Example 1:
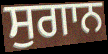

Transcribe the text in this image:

ਸੁਗਾਨ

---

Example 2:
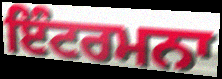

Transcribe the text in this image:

ਇੰਟਰਮਨਾ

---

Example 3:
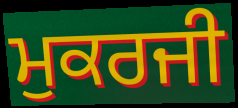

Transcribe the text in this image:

ਮੁਕਰਜੀ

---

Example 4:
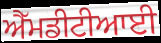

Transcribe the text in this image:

ਐੱਮਡੀਟੀਆਈ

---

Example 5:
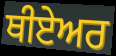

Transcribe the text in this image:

ਥੀਏਅਰ